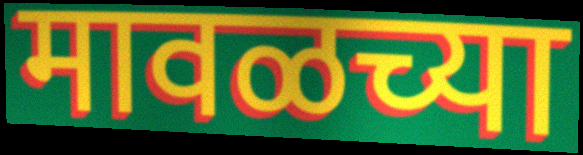
मावळच्या